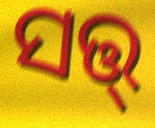
ସତ୍ତ୍